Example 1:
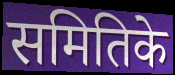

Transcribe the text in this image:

समितिके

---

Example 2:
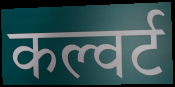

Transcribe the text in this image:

कल्वर्ट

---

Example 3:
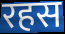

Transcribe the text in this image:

रहस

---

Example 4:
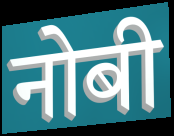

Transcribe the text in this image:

नोबी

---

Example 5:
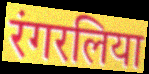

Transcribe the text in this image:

रंगरलिया